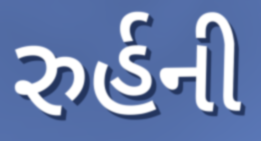
રુર્હની